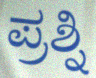
ಪ್ರಶ್ನಿ